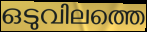
ഒടുവിലത്തെ